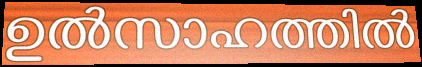
ഉൽസാഹത്തിൽ